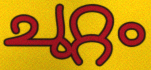
ചുറ്റം